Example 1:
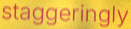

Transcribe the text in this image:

staggeringly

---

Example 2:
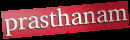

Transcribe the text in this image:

prasthanam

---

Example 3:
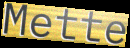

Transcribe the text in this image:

Mette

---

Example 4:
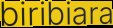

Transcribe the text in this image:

biribiara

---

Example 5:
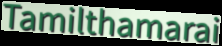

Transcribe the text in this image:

Tamilthamarai